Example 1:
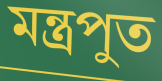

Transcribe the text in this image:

মন্ত্রপুত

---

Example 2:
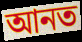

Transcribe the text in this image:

আনত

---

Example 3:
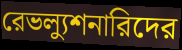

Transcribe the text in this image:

রেভল্যুশনারিদের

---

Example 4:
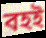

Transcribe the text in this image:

বহই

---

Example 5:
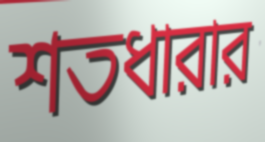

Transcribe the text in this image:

শতধারার